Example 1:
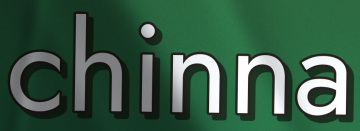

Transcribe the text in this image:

chinna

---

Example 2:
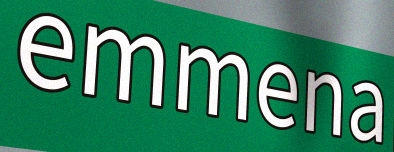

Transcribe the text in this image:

emmena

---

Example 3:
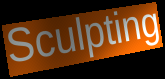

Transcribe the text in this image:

Sculpting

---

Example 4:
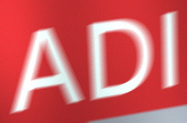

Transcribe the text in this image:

ADI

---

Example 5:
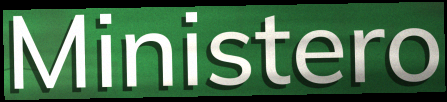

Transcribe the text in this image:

Ministero